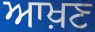
ਆਖ਼ਣ